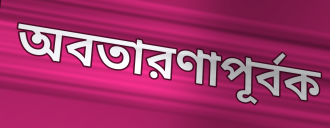
অবতারণাপূর্বক